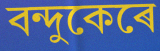
বন্দুকেৰে